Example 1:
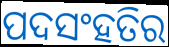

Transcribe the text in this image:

ପଦସଂହତିର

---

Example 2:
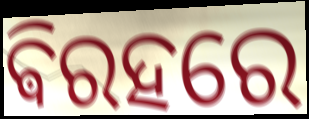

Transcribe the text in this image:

ଵିରହରେ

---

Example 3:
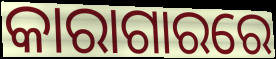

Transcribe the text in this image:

କାରାଗାରରେ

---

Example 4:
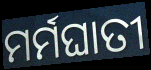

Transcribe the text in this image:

ମର୍ମଘାତୀ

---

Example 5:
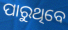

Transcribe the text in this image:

ପାରୁଥିବେ